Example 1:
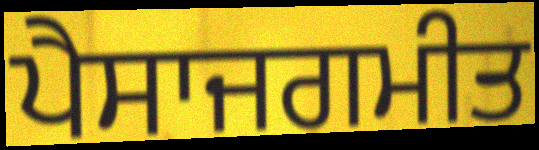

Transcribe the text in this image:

ਪੈਸਾਜਗਮੀਤ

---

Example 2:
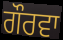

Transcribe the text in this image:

ਗੌਰਵਾ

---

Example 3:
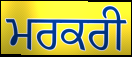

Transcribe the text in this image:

ਮਰਕਰੀ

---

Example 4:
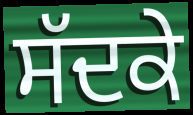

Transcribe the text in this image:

ਸੱਦਕੇ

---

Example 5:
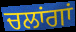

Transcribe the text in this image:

ਚਲਾਂਗਾਂ